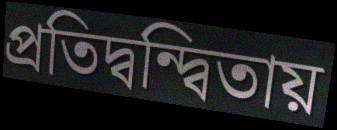
প্রতিদ্বন্দ্বিতায়